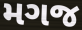
મગજ